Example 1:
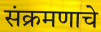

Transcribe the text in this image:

संक्रमणाचे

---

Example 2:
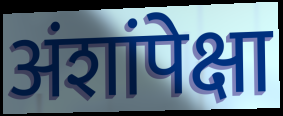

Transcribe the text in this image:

अंशांपेक्षा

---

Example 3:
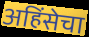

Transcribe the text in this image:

अहिंसेचा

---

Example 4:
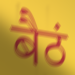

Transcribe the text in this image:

बैठं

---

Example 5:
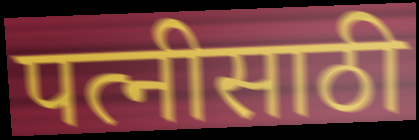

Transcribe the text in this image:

पत्नीसाठी